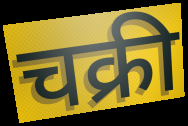
चक्री